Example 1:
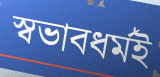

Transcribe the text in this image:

স্বভাবধর্মই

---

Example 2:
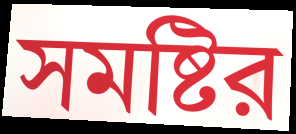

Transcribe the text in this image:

সমষ্টির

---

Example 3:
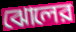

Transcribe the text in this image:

ঝোলের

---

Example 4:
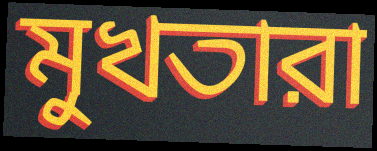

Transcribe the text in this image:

মুখতারা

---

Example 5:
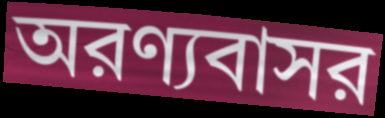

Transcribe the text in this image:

অরণ্যবাসর